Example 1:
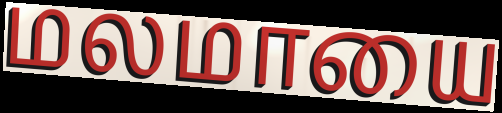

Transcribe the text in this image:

மலமாயை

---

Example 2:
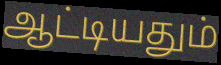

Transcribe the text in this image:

ஆட்டியதும்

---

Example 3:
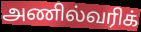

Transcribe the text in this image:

அணில்வரிக்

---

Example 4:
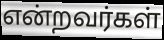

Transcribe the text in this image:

என்றவர்கள்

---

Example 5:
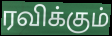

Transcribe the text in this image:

ரவிக்கும்